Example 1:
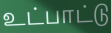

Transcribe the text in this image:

உட்பாட்டு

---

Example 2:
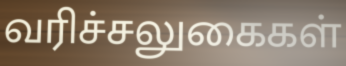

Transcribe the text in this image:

வரிச்சலுகைகள்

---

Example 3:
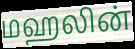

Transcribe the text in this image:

மஹலின்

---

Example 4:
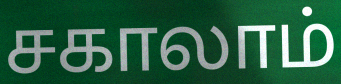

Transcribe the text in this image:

சகாலாம்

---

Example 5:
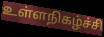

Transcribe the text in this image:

உள்ளநிகழ்ச்சி